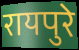
रायपुरे